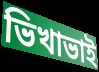
ভিখাভাই